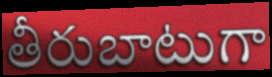
తీరుబాటుగా